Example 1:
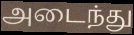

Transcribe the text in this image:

அடைந்து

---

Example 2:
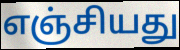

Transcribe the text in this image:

எஞ்சியது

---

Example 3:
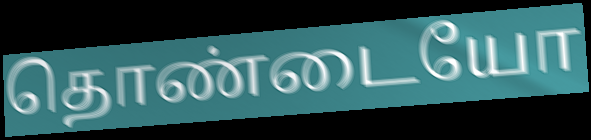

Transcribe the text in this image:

தொண்டையோ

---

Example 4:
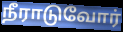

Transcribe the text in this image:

நீராடுவோர்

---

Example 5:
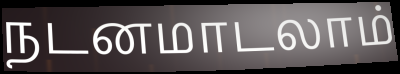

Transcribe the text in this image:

நடனமாடலாம்